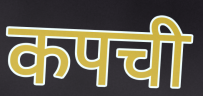
कपची